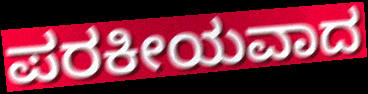
ಪರಕೀಯವಾದ